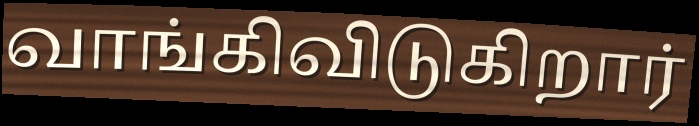
வாங்கிவிடுகிறார்